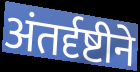
अंतर्दृष्टीने